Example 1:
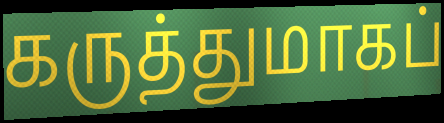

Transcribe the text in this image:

கருத்துமாகப்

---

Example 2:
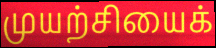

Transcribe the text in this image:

முயற்சியைக்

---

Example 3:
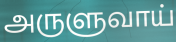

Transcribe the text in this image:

அருளுவாய்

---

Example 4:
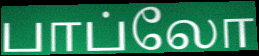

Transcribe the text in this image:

பாப்லோ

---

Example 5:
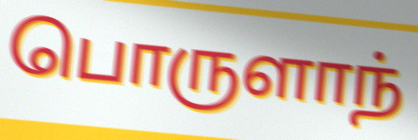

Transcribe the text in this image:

பொருளாந்